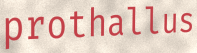
prothallus